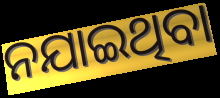
ନଯାଇଥିବା